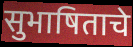
सुभाषिताचे